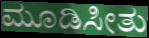
ಮೂಡಿಸೀತು